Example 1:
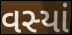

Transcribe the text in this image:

વસ્યાં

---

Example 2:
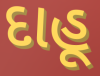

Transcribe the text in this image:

દાહૂ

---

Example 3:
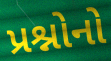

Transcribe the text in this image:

પ્રશ્નોનો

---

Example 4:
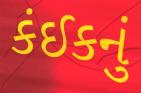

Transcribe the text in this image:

કંઈકનું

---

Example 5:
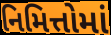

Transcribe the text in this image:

નિમિત્તોમાં